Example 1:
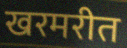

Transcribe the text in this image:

खरमरीत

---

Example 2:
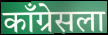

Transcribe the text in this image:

काँग्रेसला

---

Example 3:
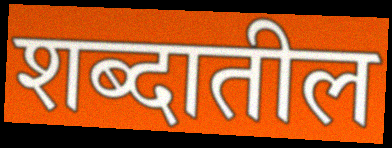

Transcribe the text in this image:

शब्दातील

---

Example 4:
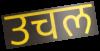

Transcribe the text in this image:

उचल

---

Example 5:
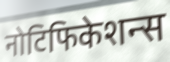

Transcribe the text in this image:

नोटिफिकेशन्स